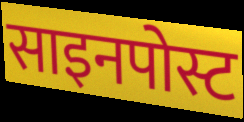
साइनपोस्ट